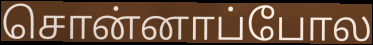
சொன்னாப்போல